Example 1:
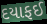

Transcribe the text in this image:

દયાફઈ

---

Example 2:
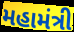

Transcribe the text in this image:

મહામંત્રી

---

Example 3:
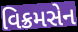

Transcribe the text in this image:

વિક્રમસેન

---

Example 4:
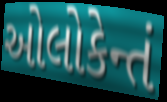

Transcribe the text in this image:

ઓલોકેન્તં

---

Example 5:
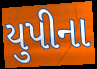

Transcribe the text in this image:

યુપીના